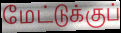
மேட்டுக்குப்